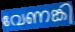
വേണങ്കി